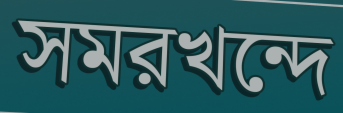
সমরখন্দে